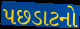
પછડાટનો